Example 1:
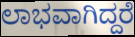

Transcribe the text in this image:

ಲಾಭವಾಗಿದ್ದರೆ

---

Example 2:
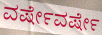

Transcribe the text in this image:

ವರ್ಷೇವರ್ಷೇ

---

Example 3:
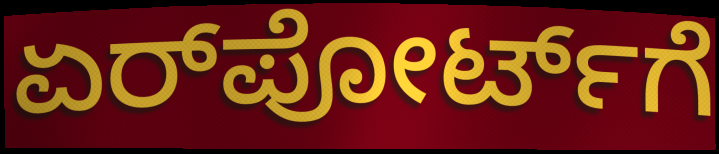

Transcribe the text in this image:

ಏರ್‌ಪೋರ್ಟ್‌ಗೆ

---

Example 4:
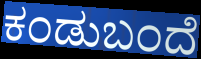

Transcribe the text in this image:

ಕಂಡುಬಂದೆ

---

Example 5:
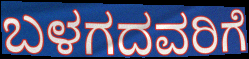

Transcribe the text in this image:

ಬಳಗದವರಿಗೆ